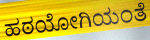
ಹಠಯೋಗಿಯಂತೆ